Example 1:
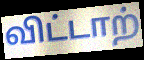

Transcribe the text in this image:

விட்டாற்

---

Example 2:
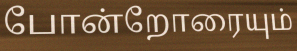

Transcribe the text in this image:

போன்றோரையும்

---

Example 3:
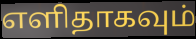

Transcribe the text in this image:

எளிதாகவும்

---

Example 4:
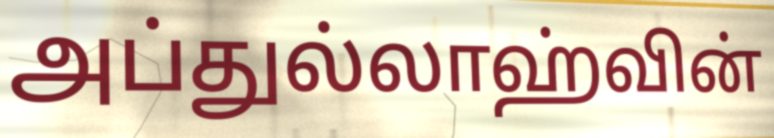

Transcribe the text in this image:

அப்துல்லாஹ்வின்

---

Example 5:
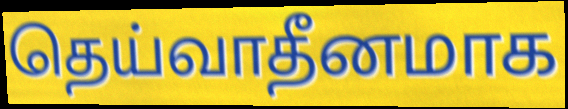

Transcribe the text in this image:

தெய்வாதீனமாக